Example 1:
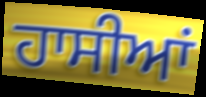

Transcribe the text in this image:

ਹਾਸੀਆਂ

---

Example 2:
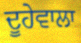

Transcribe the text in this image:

ਦੂਹੇਵਾਲਾ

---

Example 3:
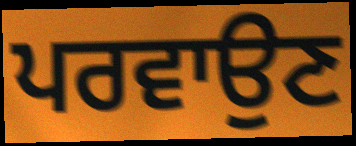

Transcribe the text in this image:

ਪਰਵਾਉਣ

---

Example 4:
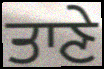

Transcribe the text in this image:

ਤਾਣੇ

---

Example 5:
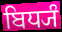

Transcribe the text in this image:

ਬਿਧ੍ਯੰ